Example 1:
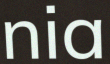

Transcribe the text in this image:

nia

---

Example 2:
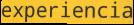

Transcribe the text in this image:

experiencia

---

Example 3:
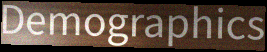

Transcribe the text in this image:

Demographics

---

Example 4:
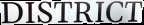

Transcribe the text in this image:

DISTRICT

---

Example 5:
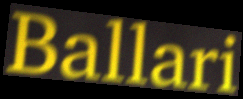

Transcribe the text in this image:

Ballari